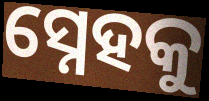
ସ୍ନେହକୁ